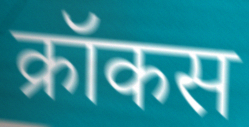
क्रॉकस